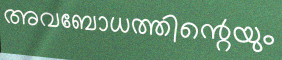
അവബോധത്തിന്റെയും